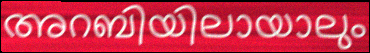
അറബിയിലായാലും